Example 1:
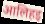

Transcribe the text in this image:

आलिहइ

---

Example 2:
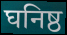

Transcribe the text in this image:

घनिष्ठ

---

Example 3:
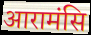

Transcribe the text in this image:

आरामंसि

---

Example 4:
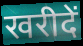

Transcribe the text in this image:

खरीदें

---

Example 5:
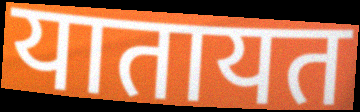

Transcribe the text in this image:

यातायत